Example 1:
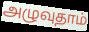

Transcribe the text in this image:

அழுவுதாம்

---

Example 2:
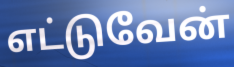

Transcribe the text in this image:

எட்டுவேன்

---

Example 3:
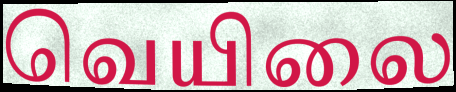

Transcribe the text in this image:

வெயிலை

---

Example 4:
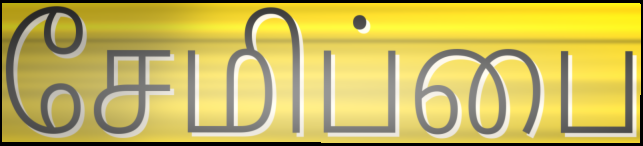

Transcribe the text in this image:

சேமிப்பை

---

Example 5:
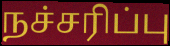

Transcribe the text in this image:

நச்சரிப்பு